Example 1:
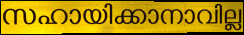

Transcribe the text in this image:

സഹായിക്കാനാവില്ല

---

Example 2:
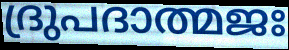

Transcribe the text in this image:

ദ്രുപദാത്മജഃ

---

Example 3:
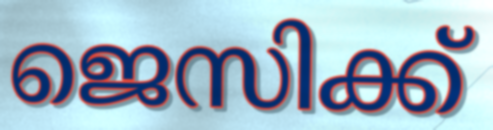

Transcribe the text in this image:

ജെസിക്ക്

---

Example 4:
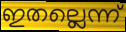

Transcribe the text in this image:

ഇതല്ലെന്ന്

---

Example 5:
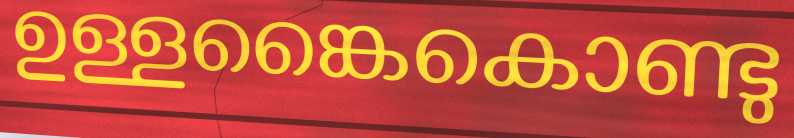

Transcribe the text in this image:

ഉള്ളങ്കൈകൊണ്ടു